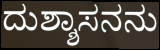
ದುಶ್ಶಾಸನನು